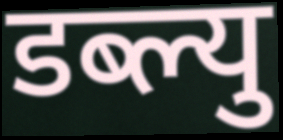
डब्ल्यु